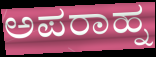
ಅಪರಾಹ್ನ